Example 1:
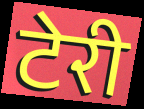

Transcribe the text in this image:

टेरी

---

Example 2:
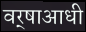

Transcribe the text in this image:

वर्षाआधी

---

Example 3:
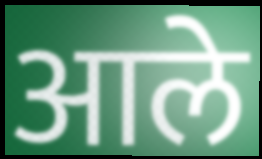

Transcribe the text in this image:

आले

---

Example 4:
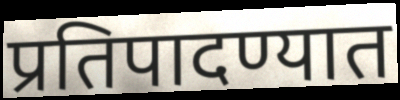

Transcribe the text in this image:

प्रतिपादण्यात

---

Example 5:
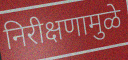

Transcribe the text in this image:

निरीक्षणामुळे